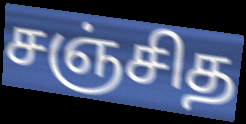
சஞ்சித